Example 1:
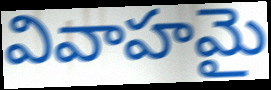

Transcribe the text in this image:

వివాహమై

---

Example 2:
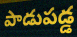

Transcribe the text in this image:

పాడుపడ్డ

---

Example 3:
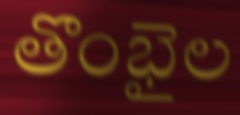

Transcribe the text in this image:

తొంభైల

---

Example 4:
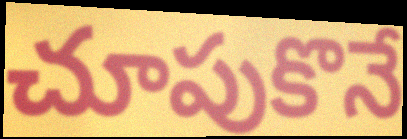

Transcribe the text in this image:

చూపుకొనే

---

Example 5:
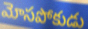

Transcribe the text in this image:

మోసపోకుడు